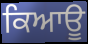
ਕਿਆਊ